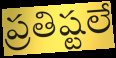
ప్రతిష్టలే